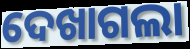
ଦେଖାଗଲା